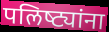
पलिष्ट्यांना